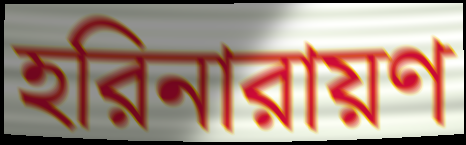
হরিনারায়ণ